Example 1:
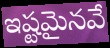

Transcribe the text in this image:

ఇష్టమైనవే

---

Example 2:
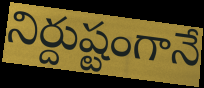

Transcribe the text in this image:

నిర్దుష్టంగానే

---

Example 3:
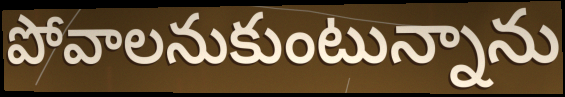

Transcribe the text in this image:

పోవాలనుకుంటున్నాను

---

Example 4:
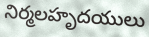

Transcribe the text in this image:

నిర్మలహృదయులు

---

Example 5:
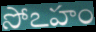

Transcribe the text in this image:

సోఽహం